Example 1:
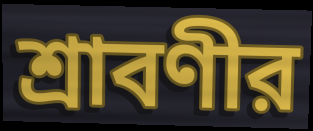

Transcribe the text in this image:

শ্রাবণীর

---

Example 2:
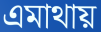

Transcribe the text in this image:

এমাথায়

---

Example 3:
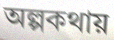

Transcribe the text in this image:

অল্পকথায়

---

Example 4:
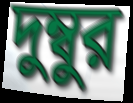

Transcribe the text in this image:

দুম্বুর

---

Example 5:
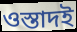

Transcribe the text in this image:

ওস্তাদই